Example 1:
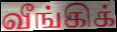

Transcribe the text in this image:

வீங்கிக்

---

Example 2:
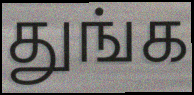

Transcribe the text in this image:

துங்க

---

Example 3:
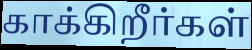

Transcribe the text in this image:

காக்கிறீர்கள்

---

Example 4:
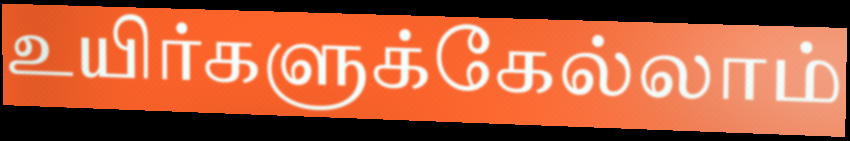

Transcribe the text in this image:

உயிர்களுக்கேல்லாம்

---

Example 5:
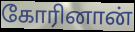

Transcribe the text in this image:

கோரினான்